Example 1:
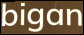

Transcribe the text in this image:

bigan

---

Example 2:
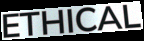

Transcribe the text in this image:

ETHICAL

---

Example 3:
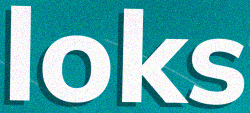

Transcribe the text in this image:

loks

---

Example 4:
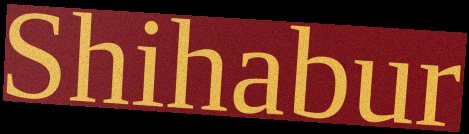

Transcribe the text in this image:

Shihabur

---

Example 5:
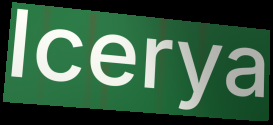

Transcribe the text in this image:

Icerya